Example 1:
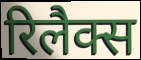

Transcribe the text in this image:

रिलैक्स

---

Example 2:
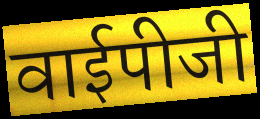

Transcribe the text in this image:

वाईपीजी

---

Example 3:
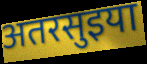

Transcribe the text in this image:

अतरसुइया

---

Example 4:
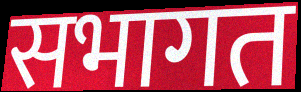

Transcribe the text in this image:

सभागत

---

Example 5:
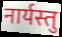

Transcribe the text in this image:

नार्यस्तु